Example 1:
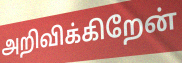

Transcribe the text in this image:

அறிவிக்கிறேன்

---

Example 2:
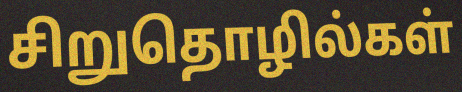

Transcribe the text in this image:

சிறுதொழில்கள்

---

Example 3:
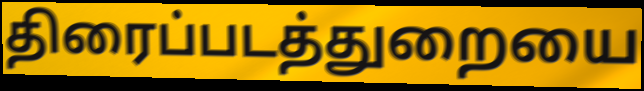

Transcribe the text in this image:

திரைப்படத்துறையை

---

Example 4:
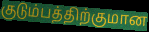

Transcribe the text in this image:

குடும்பத்திற்குமான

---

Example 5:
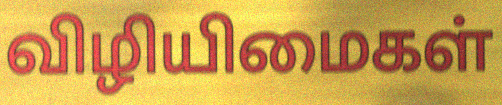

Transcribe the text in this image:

விழியிமைகள்